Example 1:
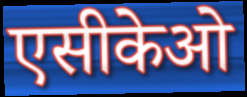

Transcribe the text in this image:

एसीकेओ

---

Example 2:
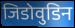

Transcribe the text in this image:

जिडोवुडिन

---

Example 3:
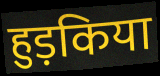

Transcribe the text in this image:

हुड़किया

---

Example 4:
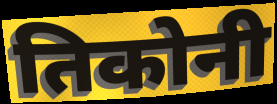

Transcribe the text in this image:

तिकोनी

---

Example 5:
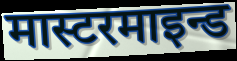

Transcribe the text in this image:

मास्टरमाइन्ड